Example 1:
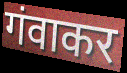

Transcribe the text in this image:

गंवाकर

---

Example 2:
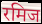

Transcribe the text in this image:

रमिज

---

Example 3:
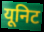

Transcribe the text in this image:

यूनिट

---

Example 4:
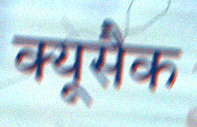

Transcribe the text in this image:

क्यूसैक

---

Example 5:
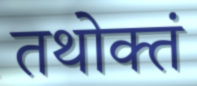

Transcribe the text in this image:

तथोक्तं